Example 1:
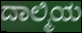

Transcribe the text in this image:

ದಾಲ್ಮಿಯ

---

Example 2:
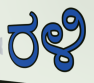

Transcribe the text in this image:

ರಳಿ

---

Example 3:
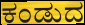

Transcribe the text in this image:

ಕಂಡುದ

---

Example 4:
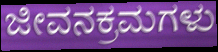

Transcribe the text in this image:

ಜೀವನಕ್ರಮಗಳು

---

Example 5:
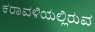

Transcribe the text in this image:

ಕರಾವಳಿಯಲ್ಲಿರುವ